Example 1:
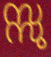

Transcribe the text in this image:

സ്സു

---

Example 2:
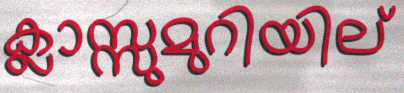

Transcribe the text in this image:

ക്ലാസ്സുമുറിയില്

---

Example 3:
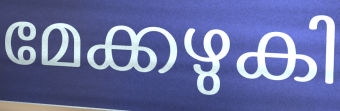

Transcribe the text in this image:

മേക്കഴുകി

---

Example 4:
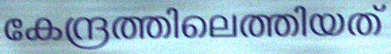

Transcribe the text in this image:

കേന്ദ്രത്തിലെത്തിയത്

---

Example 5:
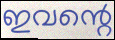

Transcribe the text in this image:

ഇവന്റെ